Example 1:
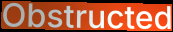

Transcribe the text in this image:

Obstructed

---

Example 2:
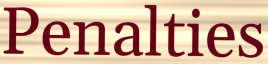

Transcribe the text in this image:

Penalties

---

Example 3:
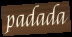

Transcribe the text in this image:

padada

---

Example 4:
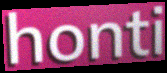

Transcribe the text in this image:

honti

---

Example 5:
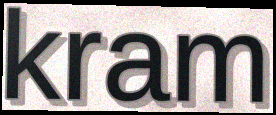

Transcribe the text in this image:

kram